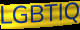
LGBTIQ